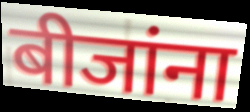
बीजांना